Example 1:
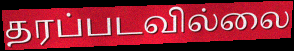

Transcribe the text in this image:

தரப்படவில்லை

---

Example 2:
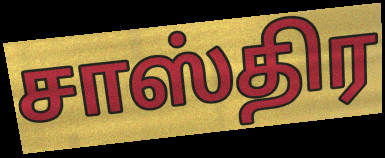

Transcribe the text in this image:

சாஸ்திர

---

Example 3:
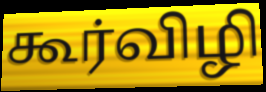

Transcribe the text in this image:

கூர்விழி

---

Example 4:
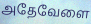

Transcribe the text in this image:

அதேவேளை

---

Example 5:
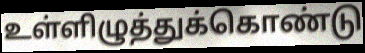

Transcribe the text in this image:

உள்ளிழுத்துக்கொண்டு